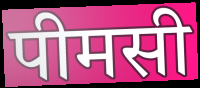
पीमसी